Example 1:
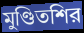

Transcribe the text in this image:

মুণ্ডিতশির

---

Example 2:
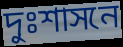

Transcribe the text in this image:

দুঃশাসনে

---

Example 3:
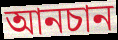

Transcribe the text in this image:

আনচান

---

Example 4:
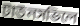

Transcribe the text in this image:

টাউনসভিলে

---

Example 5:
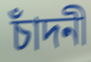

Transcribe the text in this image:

চাঁদনী